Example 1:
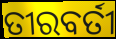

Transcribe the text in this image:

ତୀରବର୍ତୀ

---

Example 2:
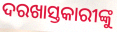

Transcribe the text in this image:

ଦରଖାସ୍ତକାରୀଙ୍କୁ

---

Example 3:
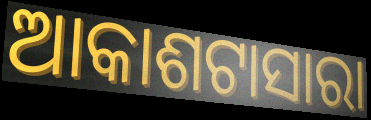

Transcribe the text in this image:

ଆକାଶଟାସାରା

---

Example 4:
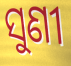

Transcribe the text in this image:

ସୁଣୀ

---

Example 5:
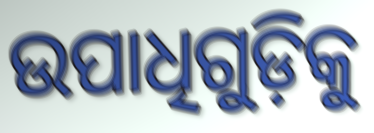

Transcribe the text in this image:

ଉପାଧିଗୁଡ଼ିକୁ